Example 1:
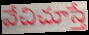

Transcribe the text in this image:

వేచిచూస్తే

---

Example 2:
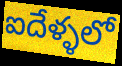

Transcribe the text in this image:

ఐదేళ్ళలో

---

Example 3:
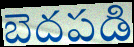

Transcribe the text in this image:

బెదపడి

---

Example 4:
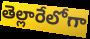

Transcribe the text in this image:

తెల్లారేలోగా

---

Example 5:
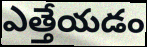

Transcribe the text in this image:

ఎత్తేయడం